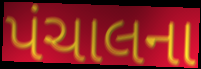
પંચાલના